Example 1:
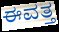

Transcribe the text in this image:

ಈವತ್ತ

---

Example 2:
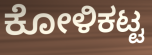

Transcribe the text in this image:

ಕೋಳಿಕಟ್ಟ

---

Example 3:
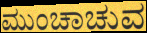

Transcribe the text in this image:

ಮುಂಚಾಚುವ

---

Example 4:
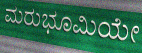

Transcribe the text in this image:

ಮರುಭೂಮಿಯೇ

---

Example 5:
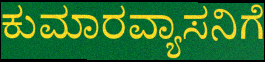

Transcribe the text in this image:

ಕುಮಾರವ್ಯಾಸನಿಗೆ